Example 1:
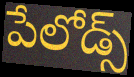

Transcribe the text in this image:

పేలోడ్స్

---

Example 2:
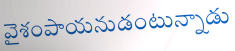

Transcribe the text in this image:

వైశంపాయనుడంటున్నాడు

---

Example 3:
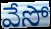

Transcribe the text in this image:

వేసో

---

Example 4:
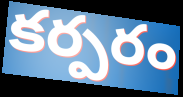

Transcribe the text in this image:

కర్పరం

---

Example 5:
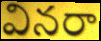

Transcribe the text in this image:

వినరా